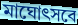
মাঘোৎসবে